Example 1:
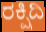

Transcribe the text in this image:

ರಕ್ಷಿದಿ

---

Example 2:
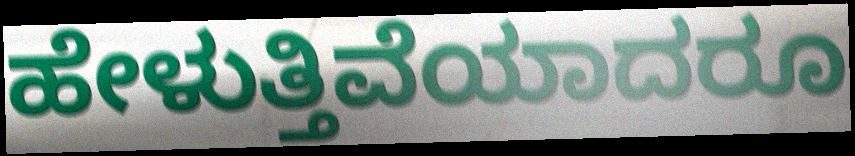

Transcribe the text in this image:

ಹೇಳುತ್ತಿವೆಯಾದರೂ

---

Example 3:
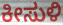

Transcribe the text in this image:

ಕೀಸುಳಿ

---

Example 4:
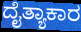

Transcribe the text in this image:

ದೈತ್ಯಾಕಾರ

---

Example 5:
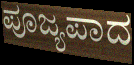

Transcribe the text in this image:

ಪೂಜ್ಯಪಾದ